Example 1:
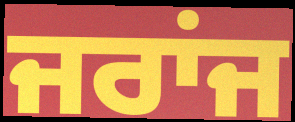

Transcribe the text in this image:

ਜਰਾਂਜ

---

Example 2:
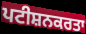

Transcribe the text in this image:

ਪਟੀਸ਼ਨਕਰਤਾ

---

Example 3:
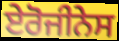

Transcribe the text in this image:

ਏਰੋਜੀਨੇਸ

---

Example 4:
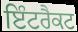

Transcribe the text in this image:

ਇੰਟਰੈਕਟ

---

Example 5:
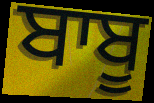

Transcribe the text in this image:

ਬਾਬੂ